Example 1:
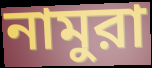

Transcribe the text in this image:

নামুরা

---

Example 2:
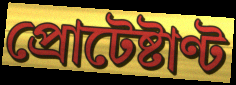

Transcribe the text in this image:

প্রোটেষ্টাণ্ট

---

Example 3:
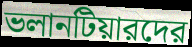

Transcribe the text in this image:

ভলানটিয়ারদের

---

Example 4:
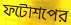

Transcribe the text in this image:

ফটোশপের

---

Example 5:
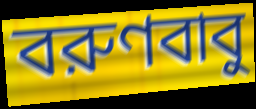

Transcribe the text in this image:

বরুণবাবু